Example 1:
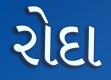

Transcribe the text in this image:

રોદા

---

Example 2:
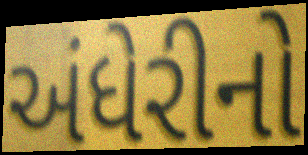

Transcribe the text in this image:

અંધેરીનો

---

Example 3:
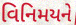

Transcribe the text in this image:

વિનિમયને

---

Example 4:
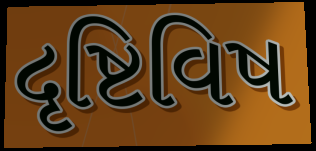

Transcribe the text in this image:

દૃષ્ટિવિષ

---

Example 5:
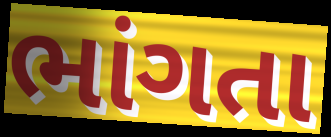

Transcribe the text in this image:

ભાંગતા